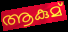
ആകുമ്